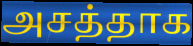
அசத்தாக